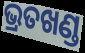
ଭ୍ରତଖଣ୍ଡ